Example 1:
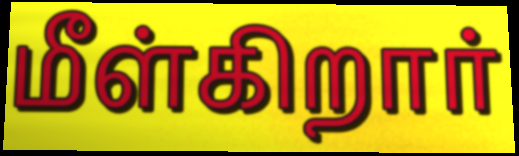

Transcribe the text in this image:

மீள்கிறார்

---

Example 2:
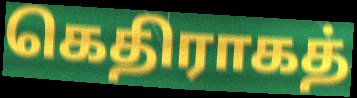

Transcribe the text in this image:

கெதிராகத்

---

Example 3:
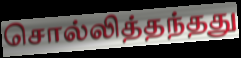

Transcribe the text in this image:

சொல்லித்தந்தது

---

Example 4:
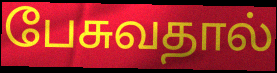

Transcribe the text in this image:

பேசுவதால்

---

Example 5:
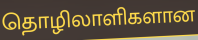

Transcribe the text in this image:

தொழிலாளிகளான